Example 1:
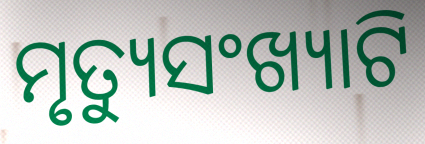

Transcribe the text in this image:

ମୃତ୍ୟୁସଂଖ୍ୟାଟି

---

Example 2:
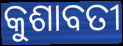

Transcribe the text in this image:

କୁଶାବତୀ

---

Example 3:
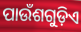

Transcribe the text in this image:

ପାଉଁଶଗୁଡ଼ିଏ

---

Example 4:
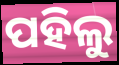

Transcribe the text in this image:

ପହିଲୁ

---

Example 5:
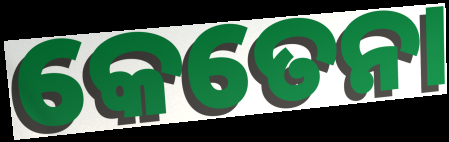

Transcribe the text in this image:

କେତେନା